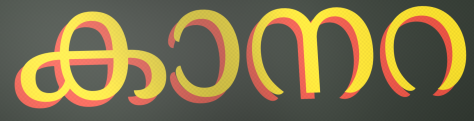
കാനറ